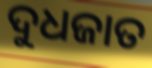
ଦୁଧଜାତ